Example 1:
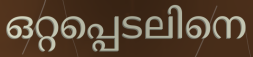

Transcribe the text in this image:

ഒറ്റപ്പെടലിനെ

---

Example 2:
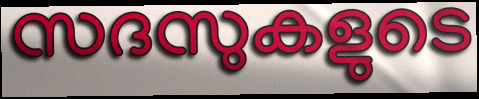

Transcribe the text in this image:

സദസുകളുടെ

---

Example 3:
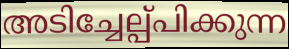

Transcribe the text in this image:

അടിച്ചേല്പ്പിക്കുന്ന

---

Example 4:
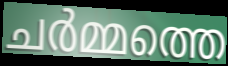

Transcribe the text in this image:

ചർമ്മത്തെ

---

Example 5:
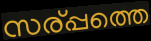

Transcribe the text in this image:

സര്പ്പത്തെ